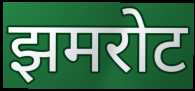
झमरोट